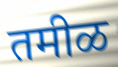
तमीळ